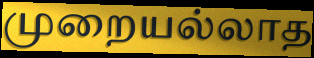
முறையல்லாத